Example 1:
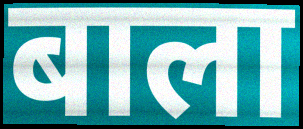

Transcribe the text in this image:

बाला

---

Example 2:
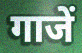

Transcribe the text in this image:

गाजें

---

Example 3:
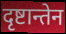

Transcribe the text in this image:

दृष्टान्तेन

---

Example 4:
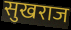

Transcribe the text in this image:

सुखराज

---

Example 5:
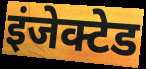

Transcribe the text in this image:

इंजेक्टेड